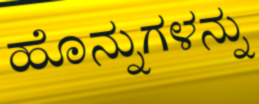
ಹೊನ್ನುಗಳನ್ನು